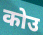
कोउ